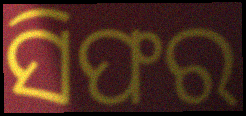
ସିଫର